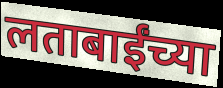
लताबाईंच्या